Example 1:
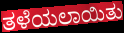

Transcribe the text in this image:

ತಳೆಯಲಾಯಿತು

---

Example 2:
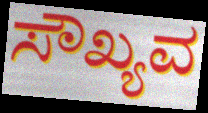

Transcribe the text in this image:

ಸೌಖ್ಯವ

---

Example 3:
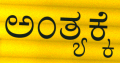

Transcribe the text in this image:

ಅಂತ್ಯಕ್ಕೆ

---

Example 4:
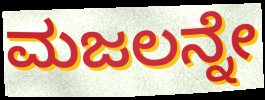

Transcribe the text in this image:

ಮಜಲನ್ನೇ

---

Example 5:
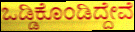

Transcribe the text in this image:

ಒಡ್ಡಿಕೊಂಡಿದ್ದೇವೆ